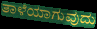
ತಾಳೆಯಾಗುವುದು